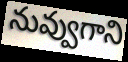
నువ్వుగాని